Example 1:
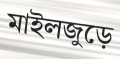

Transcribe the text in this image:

মাইলজুড়ে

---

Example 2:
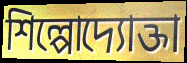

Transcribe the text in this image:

শিল্পোদ্যোক্তা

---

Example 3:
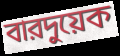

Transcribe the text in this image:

বারদুয়েক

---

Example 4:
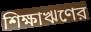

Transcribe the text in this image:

শিক্ষাঋণের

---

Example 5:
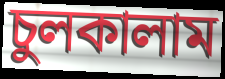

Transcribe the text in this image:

চুলকালাম